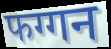
फग्‍गन